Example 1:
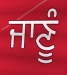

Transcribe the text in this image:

ਜਾਣੂੰ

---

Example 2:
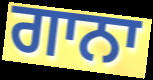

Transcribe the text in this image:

ਗਾਨਾ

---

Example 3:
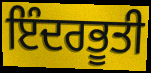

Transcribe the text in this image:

ਇੰਦਰਭੂਤੀ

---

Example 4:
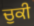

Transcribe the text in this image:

ਚੁਕੀ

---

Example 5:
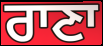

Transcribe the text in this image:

ਰਾਣਾ